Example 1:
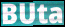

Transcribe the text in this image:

BUta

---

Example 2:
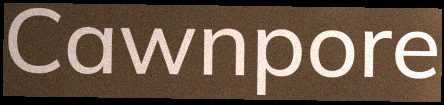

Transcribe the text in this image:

Cawnpore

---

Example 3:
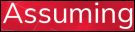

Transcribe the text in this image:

Assuming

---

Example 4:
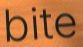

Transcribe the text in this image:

bite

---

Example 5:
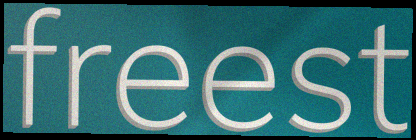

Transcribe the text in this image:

freest